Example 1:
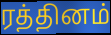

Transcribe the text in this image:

ரத்தினம்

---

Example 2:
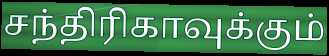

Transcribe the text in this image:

சந்திரிகாவுக்கும்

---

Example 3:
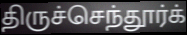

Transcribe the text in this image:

திருச்செந்தூர்க்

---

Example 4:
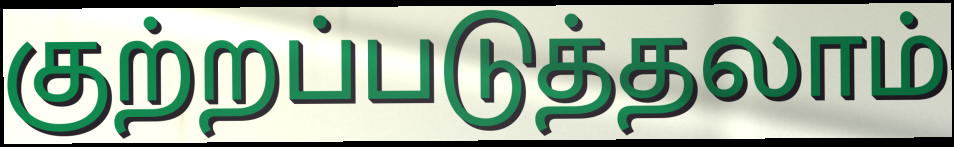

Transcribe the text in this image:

குற்றப்படுத்தலாம்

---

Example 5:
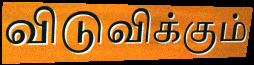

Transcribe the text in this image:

விடுவிக்கும்